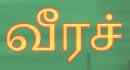
வீரச்